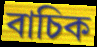
বাচিক